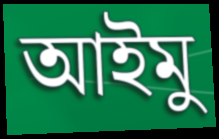
আইমু